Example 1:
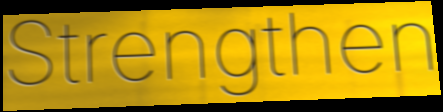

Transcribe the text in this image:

Strengthen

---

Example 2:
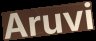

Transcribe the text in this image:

Aruvi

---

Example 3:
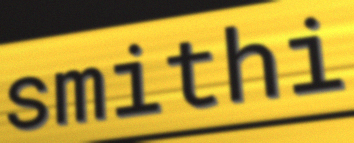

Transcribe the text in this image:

smithi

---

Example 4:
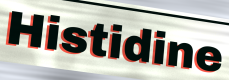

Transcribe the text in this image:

Histidine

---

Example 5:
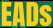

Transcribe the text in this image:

EADs